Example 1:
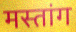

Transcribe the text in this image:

मस्तांग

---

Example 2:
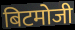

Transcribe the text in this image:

बिटमोजी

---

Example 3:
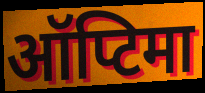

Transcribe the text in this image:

ऑप्टिमा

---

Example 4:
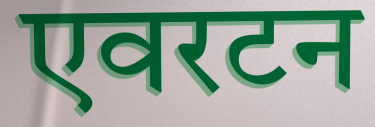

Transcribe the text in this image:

एवरटन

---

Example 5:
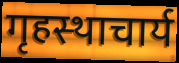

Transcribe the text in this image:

गृहस्थाचार्य